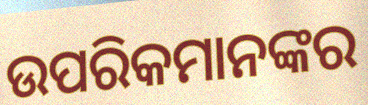
ଉପରିକମାନଙ୍କର